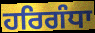
ਹਰਿਗੰਧਾ